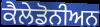
ਕੈਲੇਡੋਨੀਅਨ